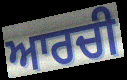
ਆਰਚੀ